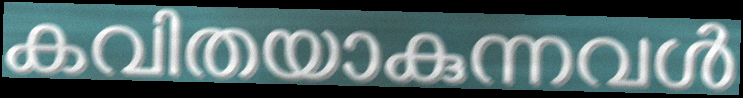
കവിതയാകുന്നവൾ